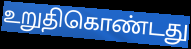
உறுதிகொண்டது